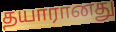
தயாரானது